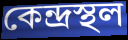
কেন্দ্ৰস্থল